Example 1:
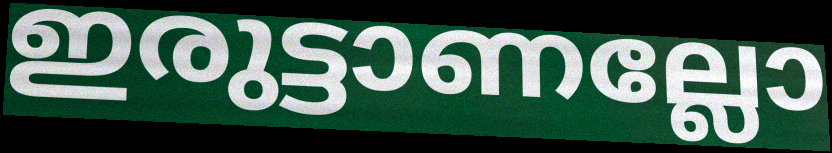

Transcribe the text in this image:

ഇരുട്ടാണല്ലോ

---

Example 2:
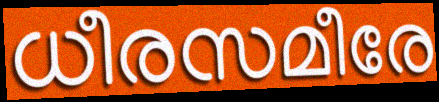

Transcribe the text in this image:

ധീരസമീരേ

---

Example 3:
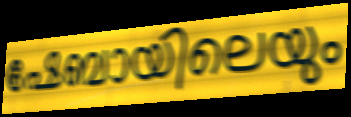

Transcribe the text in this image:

ഷേബായിലെയും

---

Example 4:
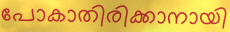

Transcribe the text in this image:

പോകാതിരിക്കാനായി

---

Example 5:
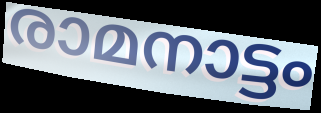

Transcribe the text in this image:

രാമനാട്ടം